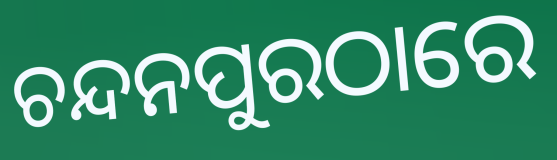
ଚନ୍ଦନପୁରଠାରେ